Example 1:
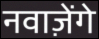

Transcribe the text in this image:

नवाज़ेंगे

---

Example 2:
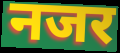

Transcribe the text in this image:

नजर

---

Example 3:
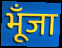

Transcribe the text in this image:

भूँजा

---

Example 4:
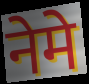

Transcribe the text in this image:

नेमे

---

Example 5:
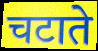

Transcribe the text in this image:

चटाते